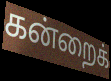
கன்றைக்